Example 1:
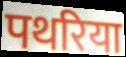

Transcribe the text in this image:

पथरिया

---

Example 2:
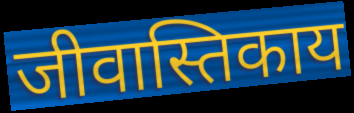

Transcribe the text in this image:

जीवास्तिकाय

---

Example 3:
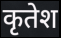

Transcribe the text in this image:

कृतेश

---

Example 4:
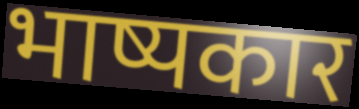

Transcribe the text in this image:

भाष्यकार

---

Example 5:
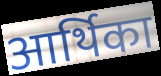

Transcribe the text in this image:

आर्थिका